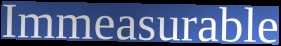
Immeasurable